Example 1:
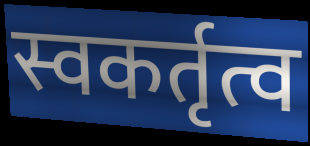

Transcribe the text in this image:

स्वकर्तृत्व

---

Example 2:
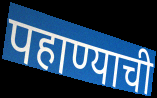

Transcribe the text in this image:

पहाण्याची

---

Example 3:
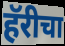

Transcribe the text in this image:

हॅरीचा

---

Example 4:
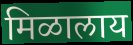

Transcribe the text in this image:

मिळालाय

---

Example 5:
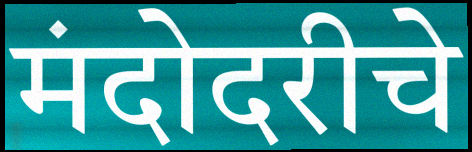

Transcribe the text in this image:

मंदोदरीचे